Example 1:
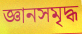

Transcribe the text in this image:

জ্ঞানসমৃদ্ধ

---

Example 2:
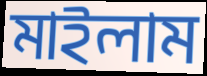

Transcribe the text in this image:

মাইলাম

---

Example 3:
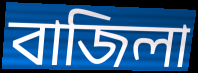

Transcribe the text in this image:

বাজিলা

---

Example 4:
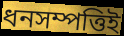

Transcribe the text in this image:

ধনসম্পত্তিই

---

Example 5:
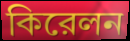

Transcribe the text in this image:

কিরেলন